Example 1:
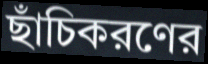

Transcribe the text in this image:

ছাঁচিকরণের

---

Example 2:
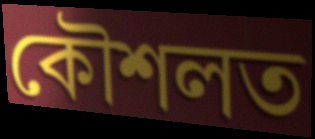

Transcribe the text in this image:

কৌশলত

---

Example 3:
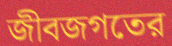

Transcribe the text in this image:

জীবজগতের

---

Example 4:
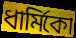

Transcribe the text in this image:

ধার্মিকো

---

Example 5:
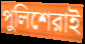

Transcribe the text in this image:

পুলিশেরাই